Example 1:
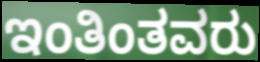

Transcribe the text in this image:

ಇಂತಿಂತವರು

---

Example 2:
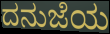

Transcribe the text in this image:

ದನುಜೆಯ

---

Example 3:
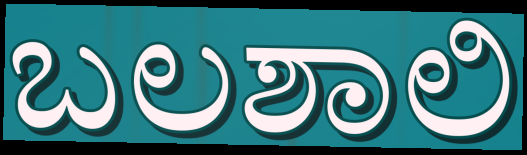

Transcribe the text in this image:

ಬಲಶಾಲಿ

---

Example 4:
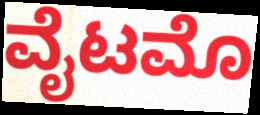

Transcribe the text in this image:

ವೈಟಮೊ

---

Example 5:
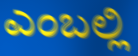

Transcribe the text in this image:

ಎಂಬಲ್ಲಿ